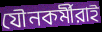
যৌনকর্মীরাই